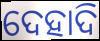
ଦେହାଦି